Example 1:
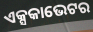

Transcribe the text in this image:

ଏକ୍ସକାଭେଟର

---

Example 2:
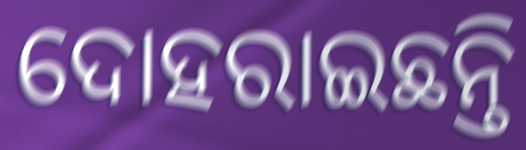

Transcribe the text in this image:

ଦୋହରାଇଛନ୍ତି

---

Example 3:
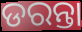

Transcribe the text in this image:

ଡରନ୍ତା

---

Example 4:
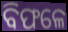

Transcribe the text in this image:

ବିଫଳେ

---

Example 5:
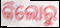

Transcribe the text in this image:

କିଲୋରୁ